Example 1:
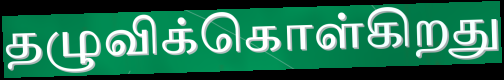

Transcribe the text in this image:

தழுவிக்கொள்கிறது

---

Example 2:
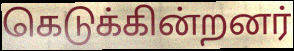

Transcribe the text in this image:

கெடுக்கின்றனர்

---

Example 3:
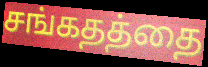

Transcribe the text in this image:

சங்கதத்தை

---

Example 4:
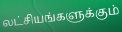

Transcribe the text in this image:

லட்சியங்களுக்கும்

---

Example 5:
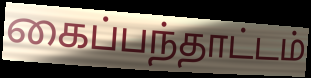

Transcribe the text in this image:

கைப்பந்தாட்டம்